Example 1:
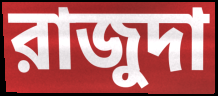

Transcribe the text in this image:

রাজুদা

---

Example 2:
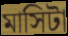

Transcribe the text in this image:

মাসিটা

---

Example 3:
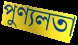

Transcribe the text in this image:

পুণ্যলতা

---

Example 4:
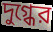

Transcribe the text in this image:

দুগ্ধের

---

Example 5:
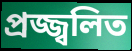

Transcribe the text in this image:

প্রজ্জ্বলিত